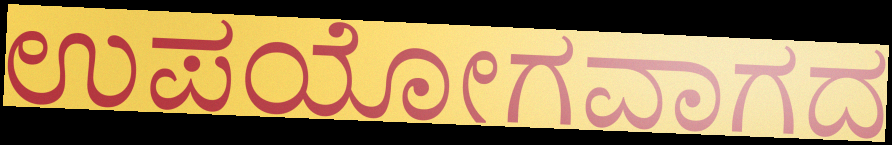
ಉಪಯೋಗವಾಗದ